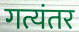
गत्यंतर